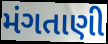
મંગતાણી